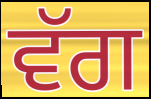
ਵੱਗ